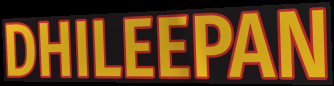
DHILEEPAN